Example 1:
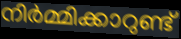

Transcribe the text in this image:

നിർമ്മിക്കാറുണ്ട്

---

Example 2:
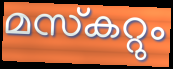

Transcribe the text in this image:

മസ്‌കറ്റും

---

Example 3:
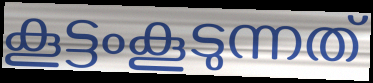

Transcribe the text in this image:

കൂട്ടംകൂടുന്നത്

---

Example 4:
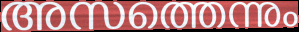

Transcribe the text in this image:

അസത്തെന്നും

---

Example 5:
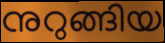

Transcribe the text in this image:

നുറുങ്ങിയ